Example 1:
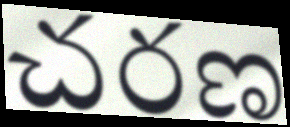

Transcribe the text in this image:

చరణ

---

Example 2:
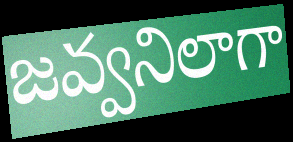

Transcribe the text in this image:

జవ్వనిలాగా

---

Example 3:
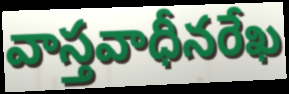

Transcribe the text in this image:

వాస్తవాధీనరేఖ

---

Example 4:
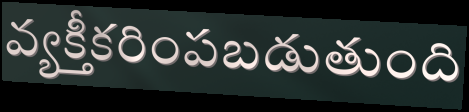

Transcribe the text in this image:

వ్యక్తీకరింపబడుతుంది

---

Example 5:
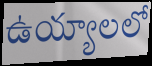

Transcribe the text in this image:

ఉయ్యాలలో